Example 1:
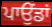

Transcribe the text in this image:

ਪਾਉਂਡਾਂ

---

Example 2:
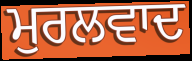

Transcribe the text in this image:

ਮੁਰਲਵਾਦ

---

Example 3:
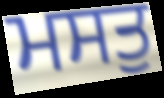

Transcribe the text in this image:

ਮਸਤੁ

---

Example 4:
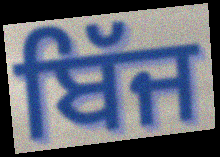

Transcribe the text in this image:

ਬਿੱਜ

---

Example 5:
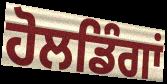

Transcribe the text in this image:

ਹੋਲਡਿੰਗਾਂ